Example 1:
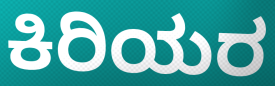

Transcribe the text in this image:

ಕಿರಿಯರ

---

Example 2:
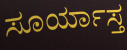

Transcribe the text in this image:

ಸೂರ್ಯಾಸ್ತ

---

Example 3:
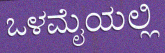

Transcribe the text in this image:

ಒಳಮೈಯಲ್ಲಿ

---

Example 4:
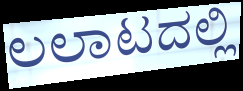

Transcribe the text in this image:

ಲಲಾಟದಲ್ಲಿ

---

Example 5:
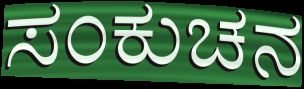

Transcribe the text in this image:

ಸಂಕುಚನ